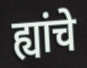
ह्यांचे